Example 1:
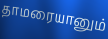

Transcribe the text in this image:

தாமரையானும்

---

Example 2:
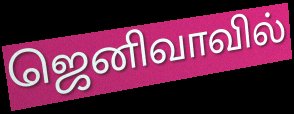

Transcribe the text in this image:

ஜெனிவாவில்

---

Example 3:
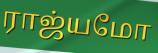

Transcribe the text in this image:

ராஜ்யமோ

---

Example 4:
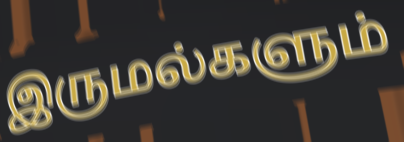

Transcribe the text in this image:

இருமல்களும்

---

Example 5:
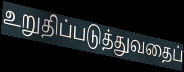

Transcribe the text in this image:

உறுதிப்படுத்துவதைப்